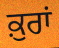
ਕ਼ੁਰਾਂ